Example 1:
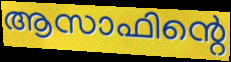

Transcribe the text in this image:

ആസാഫിന്റെ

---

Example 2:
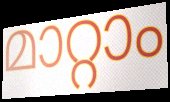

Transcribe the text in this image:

മാറ്റാം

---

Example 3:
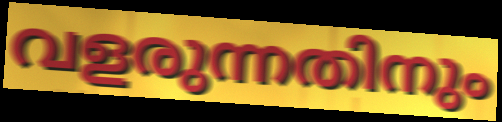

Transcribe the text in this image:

വളരുന്നതിനും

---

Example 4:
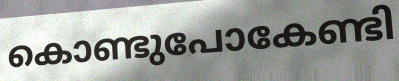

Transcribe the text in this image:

കൊണ്ടുപോകേണ്ടി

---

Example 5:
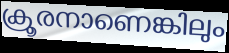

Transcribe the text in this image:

ക്രൂരനാണെങ്കിലും